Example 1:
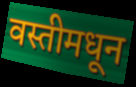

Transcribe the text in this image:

वस्तीमधून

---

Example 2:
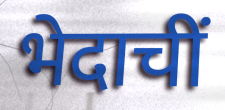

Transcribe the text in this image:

भेदाचीं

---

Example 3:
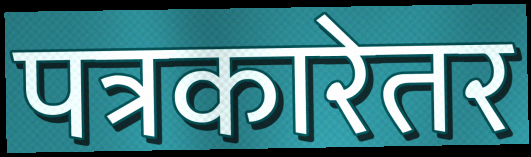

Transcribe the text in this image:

पत्रकारेतर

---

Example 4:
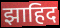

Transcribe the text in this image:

झाहिद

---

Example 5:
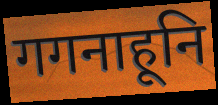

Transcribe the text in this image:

गगनाहूनि